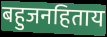
बहुजनहिताय